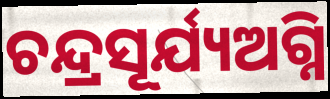
ଚନ୍ଦ୍ରସୂର୍ଯ୍ୟଅଗ୍ନି